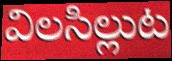
విలసిల్లుట